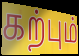
கற்பும்